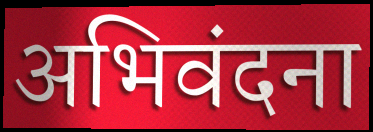
अभिवंदना